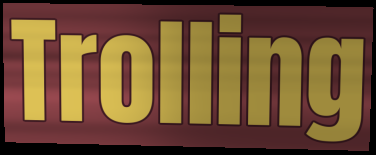
Trolling